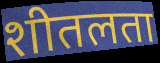
शीतलता